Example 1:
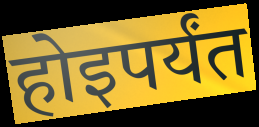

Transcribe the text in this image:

होइपर्यंत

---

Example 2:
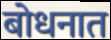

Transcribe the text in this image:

बोधनात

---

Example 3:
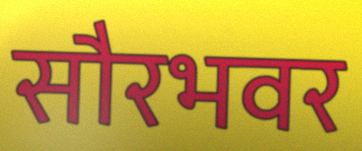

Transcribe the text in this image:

सौरभवर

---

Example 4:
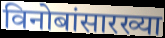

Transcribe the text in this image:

विनोबांसारख्या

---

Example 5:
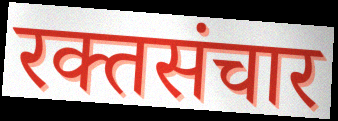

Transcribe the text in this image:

रक्तसंचार